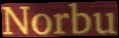
Norbu